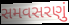
સમવસરણું